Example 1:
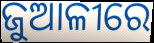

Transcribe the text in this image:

ଜୁଆଳୀରେ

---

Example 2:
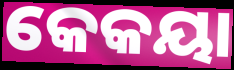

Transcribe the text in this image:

କେକୟା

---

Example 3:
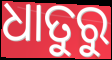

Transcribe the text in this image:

ଧାତୁରୁ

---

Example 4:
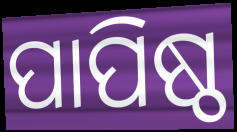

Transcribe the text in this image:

ପାପିଷ୍ଠ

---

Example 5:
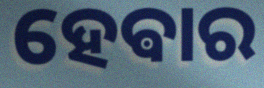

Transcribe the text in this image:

ହେଵାର